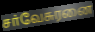
சர்வேசுரனை